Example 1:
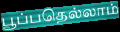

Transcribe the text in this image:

பூப்பதெல்லாம்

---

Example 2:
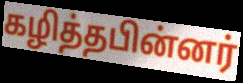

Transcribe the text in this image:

கழித்தபின்னர்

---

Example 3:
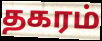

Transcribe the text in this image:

தகரம்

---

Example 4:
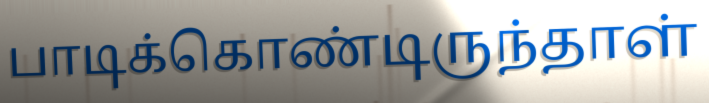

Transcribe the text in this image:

பாடிக்கொண்டிருந்தாள்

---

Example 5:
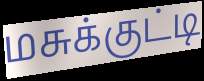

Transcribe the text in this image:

மசுக்குட்டி